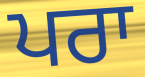
ਪਰਾ